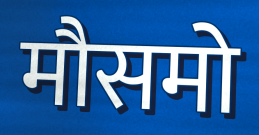
मौसमो